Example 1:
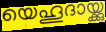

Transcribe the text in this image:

യെഹൂദായ്ക്കു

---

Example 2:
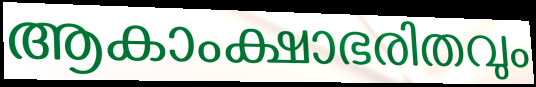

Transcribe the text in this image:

ആകാംക്ഷാഭരിതവും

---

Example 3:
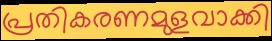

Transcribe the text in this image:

പ്രതികരണമുളവാക്കി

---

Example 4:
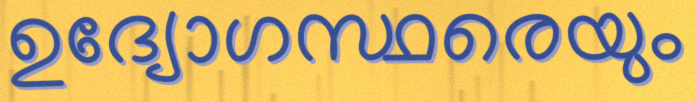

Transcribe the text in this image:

ഉദ്യോഗസ്ഥരെയും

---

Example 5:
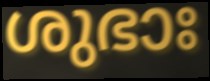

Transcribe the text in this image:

ശുഭാഃ